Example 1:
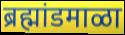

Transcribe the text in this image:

ब्रह्मांडमाळा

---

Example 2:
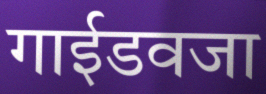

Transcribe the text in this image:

गाईडवजा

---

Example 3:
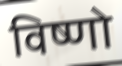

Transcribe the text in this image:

विष्णो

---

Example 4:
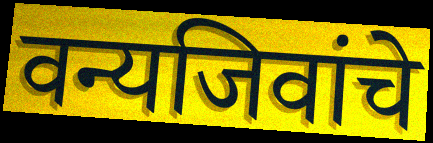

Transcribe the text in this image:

वन्यजिवांचे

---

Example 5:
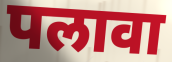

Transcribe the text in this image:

पलावा